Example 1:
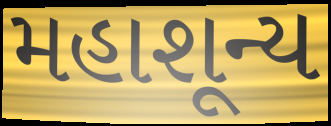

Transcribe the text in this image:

મહાશૂન્ય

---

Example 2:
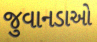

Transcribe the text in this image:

જુવાનડાઓ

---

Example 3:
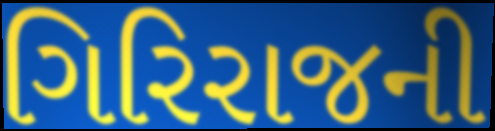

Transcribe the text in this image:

ગિરિરાજની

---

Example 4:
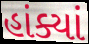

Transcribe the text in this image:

હાંક્યાં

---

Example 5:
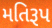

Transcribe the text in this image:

મતિરૂપ